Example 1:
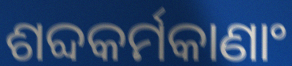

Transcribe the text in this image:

ଶବ୍ଦକର୍ମକାଣାଂ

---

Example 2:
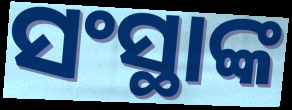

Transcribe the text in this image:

ସଂସ୍ଥାଙ୍କ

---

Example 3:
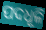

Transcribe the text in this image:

ପଦଧୂଳି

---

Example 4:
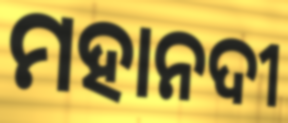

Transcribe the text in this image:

ମହାନଦୀ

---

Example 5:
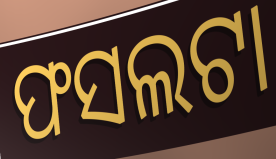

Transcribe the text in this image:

ଫସଲଟା